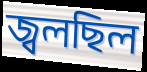
জ্বলছিল